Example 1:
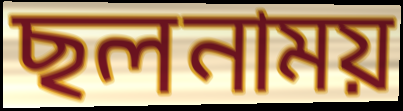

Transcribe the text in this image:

ছলনাময়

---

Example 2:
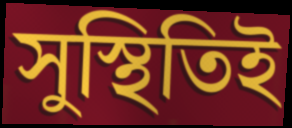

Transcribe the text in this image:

সুস্থিতিই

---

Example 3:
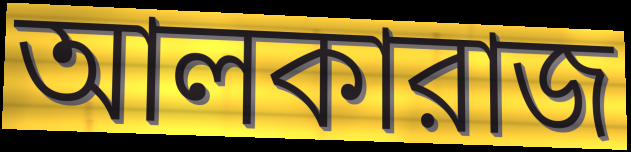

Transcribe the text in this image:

আলকারাজ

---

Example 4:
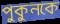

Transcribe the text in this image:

পুকুনকে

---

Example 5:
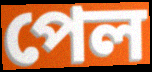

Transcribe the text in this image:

পেল